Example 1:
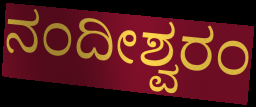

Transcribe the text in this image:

ನಂದೀಶ್ವರಂ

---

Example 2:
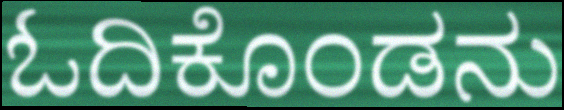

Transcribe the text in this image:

ಓದಿಕೊಂಡನು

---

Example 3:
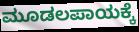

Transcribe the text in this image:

ಮೂಡಲಪಾಯಕ್ಕೆ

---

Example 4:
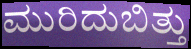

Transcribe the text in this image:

ಮುರಿದುಬಿತ್ತು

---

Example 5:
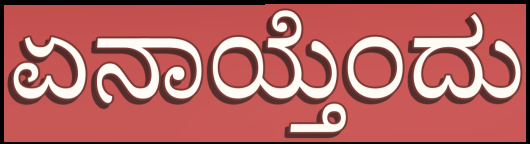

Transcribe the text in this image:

ಏನಾಯ್ತೆಂದು